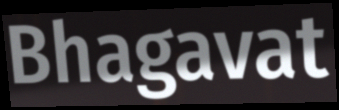
Bhagavat